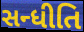
સન્ધીતિ